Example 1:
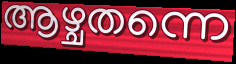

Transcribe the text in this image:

ആഴ്ചതന്നെ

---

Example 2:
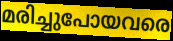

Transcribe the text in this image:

മരിച്ചുപോയവരെ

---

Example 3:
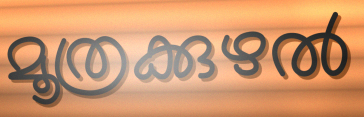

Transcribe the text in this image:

മൂത്രക്കുഴൽ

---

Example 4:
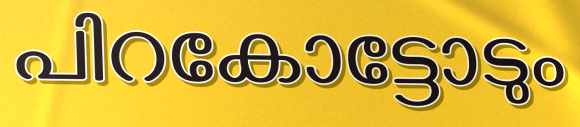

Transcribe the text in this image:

പിറകോട്ടോടും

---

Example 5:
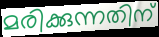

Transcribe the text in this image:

മരിക്കുന്നതിന്